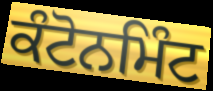
ਕੰਟੋਨਮਿੰਟ